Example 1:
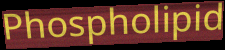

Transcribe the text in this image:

Phospholipid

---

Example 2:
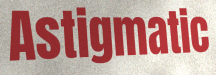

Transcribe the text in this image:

Astigmatic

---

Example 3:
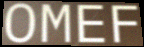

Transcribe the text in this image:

OMEF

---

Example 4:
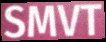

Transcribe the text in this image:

SMVT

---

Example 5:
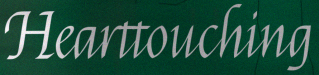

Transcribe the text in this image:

Hearttouching